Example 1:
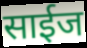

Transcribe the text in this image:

साईज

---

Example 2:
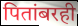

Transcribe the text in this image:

पितांबरही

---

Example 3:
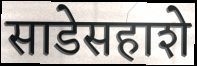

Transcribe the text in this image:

साडेसहाशे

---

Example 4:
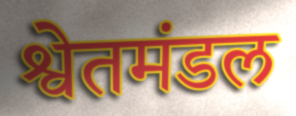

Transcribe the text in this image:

श्वेतमंडल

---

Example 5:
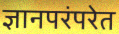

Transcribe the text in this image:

ज्ञानपरंपरेत